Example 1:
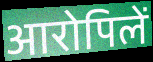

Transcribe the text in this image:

आरोपिलें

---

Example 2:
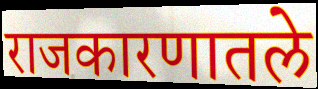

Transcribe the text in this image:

राजकारणातले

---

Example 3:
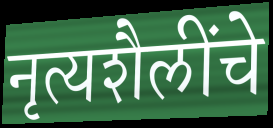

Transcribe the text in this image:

नृत्यशैलींचे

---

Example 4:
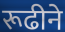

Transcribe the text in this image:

रूढीने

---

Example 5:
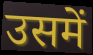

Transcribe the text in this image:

उसमें